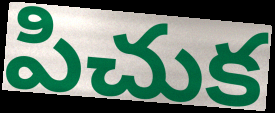
పిచుక